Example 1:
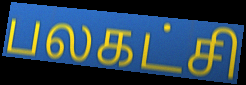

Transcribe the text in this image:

பலகட்சி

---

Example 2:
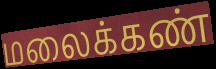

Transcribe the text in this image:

மலைக்கண்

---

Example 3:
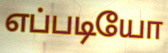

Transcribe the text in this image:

எப்படியோ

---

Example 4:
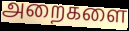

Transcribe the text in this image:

அறைகளை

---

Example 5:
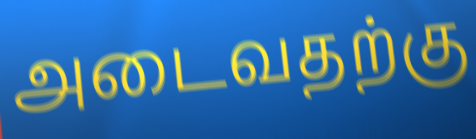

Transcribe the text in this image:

அடைவதற்கு